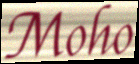
Moho